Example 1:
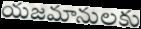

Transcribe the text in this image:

యజమానులకు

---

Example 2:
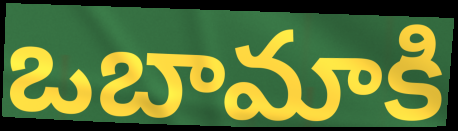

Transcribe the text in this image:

ఒబామాకి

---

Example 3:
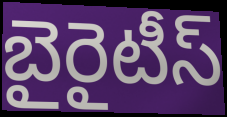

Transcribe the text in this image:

బైరైటీస్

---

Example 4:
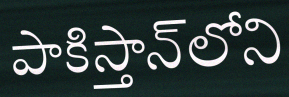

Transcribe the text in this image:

పాకిస్తాన్‌లోని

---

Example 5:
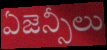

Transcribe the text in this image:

ఏజెన్సీలు